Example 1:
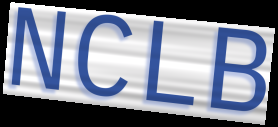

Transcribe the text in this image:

NCLB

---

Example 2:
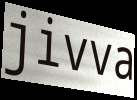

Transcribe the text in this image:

jivva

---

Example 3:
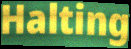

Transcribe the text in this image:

Halting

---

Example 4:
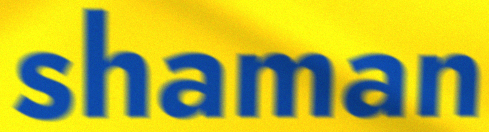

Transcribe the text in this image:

shaman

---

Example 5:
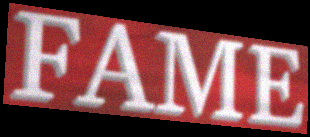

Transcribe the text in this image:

FAME